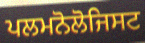
ਪਲਮਨੋਲੋਜਿਸਟ